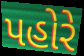
પહોરે